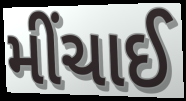
મીંચાઈ